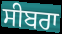
ਸੀਬਰਾ